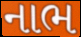
નાભ